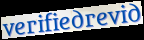
verifiedrevid